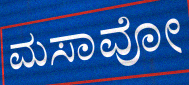
ಮಸಾವೋ